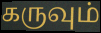
கருவும்